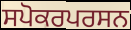
ਸਪੋਕਰਪਰਸਨ